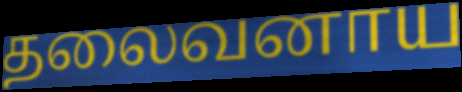
தலைவனாய